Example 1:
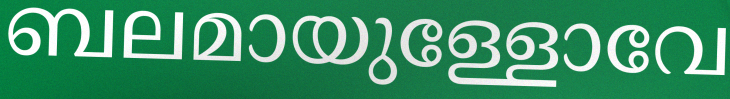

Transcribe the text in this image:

ബലമായുള്ളോവേ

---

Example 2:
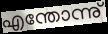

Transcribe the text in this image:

എന്തോന്നു്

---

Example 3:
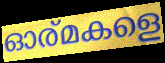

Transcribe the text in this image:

ഓര്മകളെ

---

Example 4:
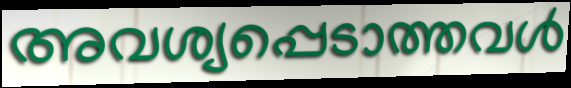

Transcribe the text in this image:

അവശ്യപ്പെടാത്തവൾ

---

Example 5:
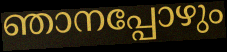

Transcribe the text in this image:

ഞാനപ്പോഴും